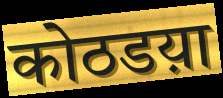
कोठडय़ा